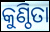
କୁଣ୍ଠିତା